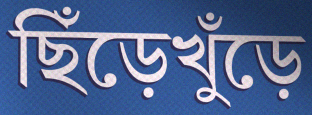
ছিঁড়েখুঁড়ে